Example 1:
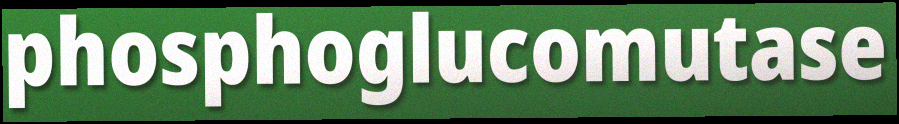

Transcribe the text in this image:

phosphoglucomutase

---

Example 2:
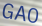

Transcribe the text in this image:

GAO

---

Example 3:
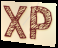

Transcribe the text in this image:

XP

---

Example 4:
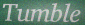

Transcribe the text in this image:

Tumble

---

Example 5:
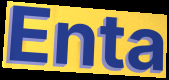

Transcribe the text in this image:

Enta